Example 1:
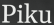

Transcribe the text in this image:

Piku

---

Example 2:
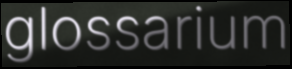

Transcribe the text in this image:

glossarium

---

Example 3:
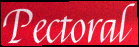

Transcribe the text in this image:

Pectoral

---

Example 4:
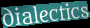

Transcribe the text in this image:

dialectics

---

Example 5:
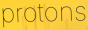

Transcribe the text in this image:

protons